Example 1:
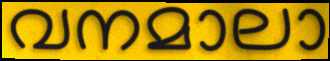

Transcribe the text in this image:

വനമാലാ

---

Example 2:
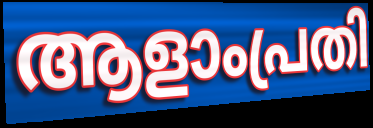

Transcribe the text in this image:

ആളാംപ്രതി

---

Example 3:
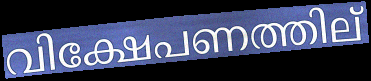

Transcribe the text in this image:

വിക്ഷേപണത്തില്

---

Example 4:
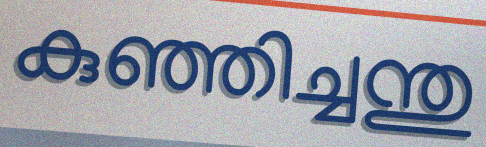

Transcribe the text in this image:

കുഞ്ഞിച്ചന്തു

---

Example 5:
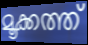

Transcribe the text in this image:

മൂക്കത്ത്